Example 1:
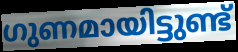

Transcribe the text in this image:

ഗുണമായിട്ടുണ്ട്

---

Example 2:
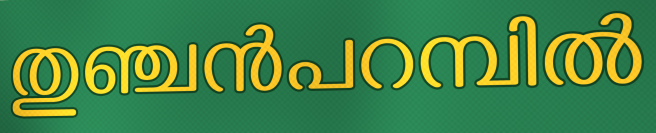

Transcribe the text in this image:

തുഞ്ചൻപറമ്പിൽ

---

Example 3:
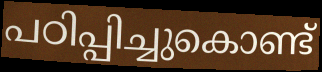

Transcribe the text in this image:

പഠിപ്പിച്ചുകൊണ്ട്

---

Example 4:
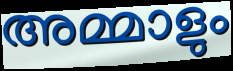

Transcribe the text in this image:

അമ്മാളും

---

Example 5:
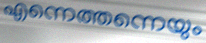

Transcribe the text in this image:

എന്നെത്തന്നെയും